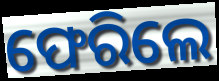
ଫେରିଲେ